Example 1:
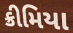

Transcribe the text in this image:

ક્રીમિયા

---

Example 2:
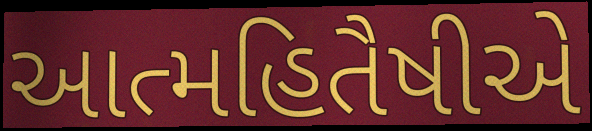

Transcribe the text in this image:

આત્મહિતૈષીએ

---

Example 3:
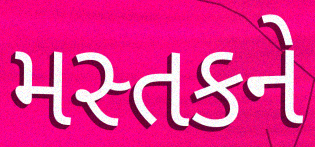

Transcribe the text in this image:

મસ્તકને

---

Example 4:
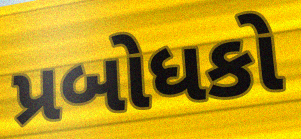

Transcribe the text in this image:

પ્રબોધકો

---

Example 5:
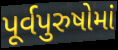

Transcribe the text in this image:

પૂર્વપુરુષોમાં